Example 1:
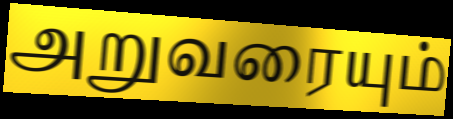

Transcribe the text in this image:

அறுவரையும்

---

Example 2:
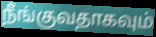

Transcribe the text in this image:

நீங்குவதாகவும்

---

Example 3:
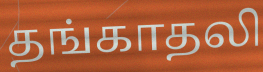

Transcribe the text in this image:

தங்காதலி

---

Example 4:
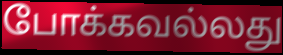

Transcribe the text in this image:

போக்கவல்லது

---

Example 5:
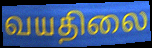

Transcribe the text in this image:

வயதிலை